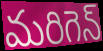
మరిగెన్